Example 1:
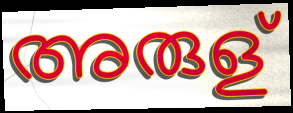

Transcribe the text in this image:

അരുള്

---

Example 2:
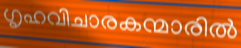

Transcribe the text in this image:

ഗൃഹവിചാരകന്മാരിൽ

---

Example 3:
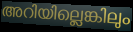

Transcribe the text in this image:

അറിയില്ലെങ്കിലും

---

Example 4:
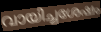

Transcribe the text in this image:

വായിച്ചശേഷം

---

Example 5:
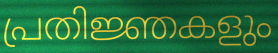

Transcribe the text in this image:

പ്രതിജ്ഞകളും